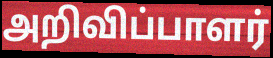
அறிவிப்பாளர்